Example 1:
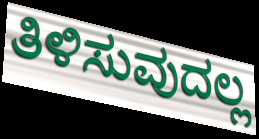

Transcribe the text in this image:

ತಿಳಿಸುವುದಲ್ಲ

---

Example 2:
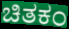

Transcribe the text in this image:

ಚಿತಕಂ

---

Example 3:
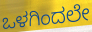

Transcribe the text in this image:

ಒಳಗಿಂದಲೇ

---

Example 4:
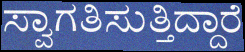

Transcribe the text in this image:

ಸ್ವಾಗತಿಸುತ್ತಿದ್ದಾರೆ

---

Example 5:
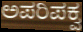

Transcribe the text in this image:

ಅಪರಿಪಕ್ವ